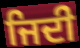
ਜਿਦੀ